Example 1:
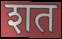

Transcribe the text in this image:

शत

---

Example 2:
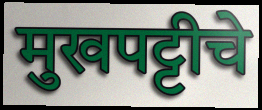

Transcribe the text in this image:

मुखपट्टीचे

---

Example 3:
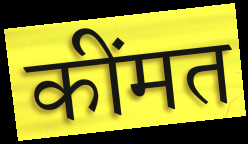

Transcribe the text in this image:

कींमत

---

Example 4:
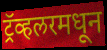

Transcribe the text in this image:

ट्रॅव्हलरमधून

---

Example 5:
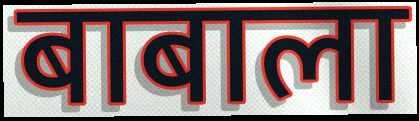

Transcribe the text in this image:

बाबाला